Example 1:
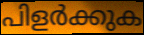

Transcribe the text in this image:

പിളർക്കുക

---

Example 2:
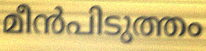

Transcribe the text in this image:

മീൻപിടുത്തം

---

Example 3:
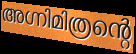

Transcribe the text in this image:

അഗ്നിമിത്രന്റെ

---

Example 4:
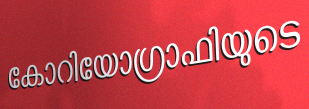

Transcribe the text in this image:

കോറിയോഗ്രാഫിയുടെ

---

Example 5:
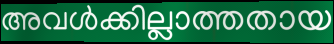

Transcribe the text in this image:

അവൾക്കില്ലാത്തതായ